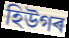
হিউগৰ